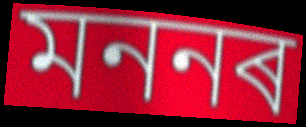
মননৰ